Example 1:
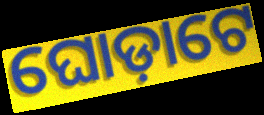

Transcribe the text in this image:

ଘୋଡ଼ାଟେ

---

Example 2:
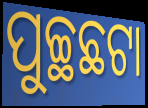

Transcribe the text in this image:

ପୁଚ୍ଛଛଟା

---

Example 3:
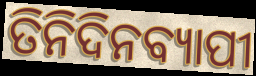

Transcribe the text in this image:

ତିନିଦିନବ୍ୟାପୀ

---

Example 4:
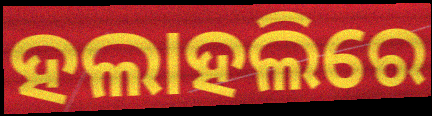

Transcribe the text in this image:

ହଲାହଲିରେ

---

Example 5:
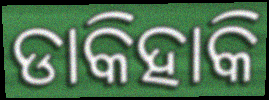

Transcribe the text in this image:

ଡାକିହାକି